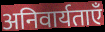
अनिवार्यताएँ